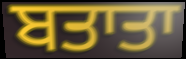
ਬਤਾਤਾ